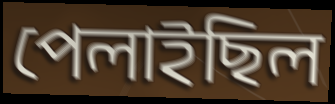
পেলাইছিল